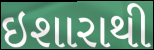
ઇશારાથી